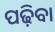
ପଢ଼ିବା